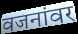
वजनांवर